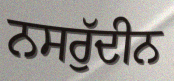
ਨਸਰੁੱਦੀਨ